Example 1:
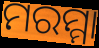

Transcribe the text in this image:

ମରମ୍ମା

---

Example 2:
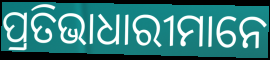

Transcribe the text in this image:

ପ୍ରତିଭାଧାରୀମାନେ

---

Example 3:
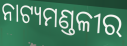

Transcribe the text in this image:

ନାଟ୍ୟମଣ୍ଡଳୀର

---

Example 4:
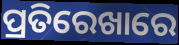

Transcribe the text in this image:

ପ୍ରତିରେଖାରେ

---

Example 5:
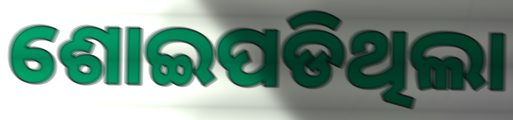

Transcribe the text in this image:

ଶୋଇପଡିଥିଲା